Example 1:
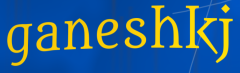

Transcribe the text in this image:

ganeshkj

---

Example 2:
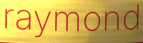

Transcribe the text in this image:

raymond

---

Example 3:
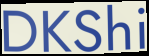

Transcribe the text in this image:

DKShi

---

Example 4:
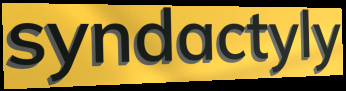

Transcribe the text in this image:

syndactyly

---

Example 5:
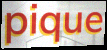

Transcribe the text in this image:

pique